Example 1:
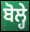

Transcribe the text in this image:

ਬੋਲ੍ਹੇ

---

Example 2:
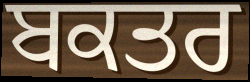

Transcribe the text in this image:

ਬਕਤਰ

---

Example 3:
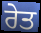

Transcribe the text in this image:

ਰੇਤ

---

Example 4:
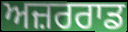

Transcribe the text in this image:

ਅਜ਼ਰਰਾਡ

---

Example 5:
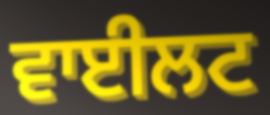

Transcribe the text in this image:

ਵਾਈਲਟ